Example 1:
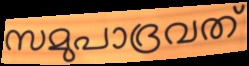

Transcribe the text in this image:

സമുപാദ്രവത്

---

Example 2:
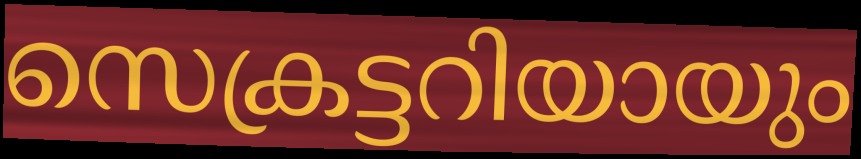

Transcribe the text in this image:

സെക്രട്ടറിയായും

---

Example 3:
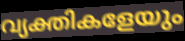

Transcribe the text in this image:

വ്യക്തികളേയും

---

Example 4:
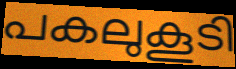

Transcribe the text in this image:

പകലുകൂടി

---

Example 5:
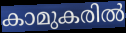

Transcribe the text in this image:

കാമുകരിൽ